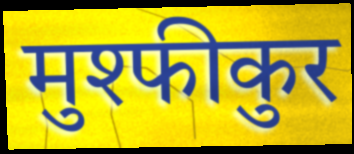
मुश्फीकुर